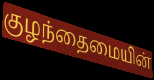
குழந்தைமையின்